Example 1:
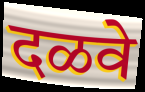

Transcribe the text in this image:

दळवे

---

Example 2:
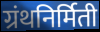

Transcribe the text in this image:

ग्रंथनिर्मिती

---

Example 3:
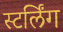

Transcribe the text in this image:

स्टर्लिंग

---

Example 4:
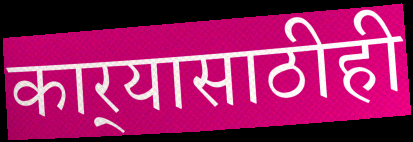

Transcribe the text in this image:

कार्यासाठीही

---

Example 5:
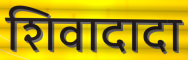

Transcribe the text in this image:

शिवादादा